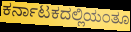
ಕರ್ನಾಟಕದಲ್ಲಿಯಂತೂ